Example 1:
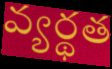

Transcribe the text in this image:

వ్యర్థత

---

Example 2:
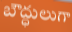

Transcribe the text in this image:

బౌద్ధులుగా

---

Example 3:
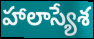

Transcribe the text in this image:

హాలాస్యేశ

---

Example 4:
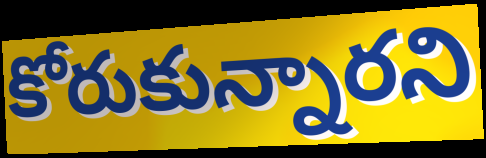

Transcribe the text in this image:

కోరుకున్నారని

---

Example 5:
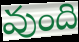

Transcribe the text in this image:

వుంది